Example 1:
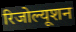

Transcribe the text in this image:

रिजोल्‍यूशन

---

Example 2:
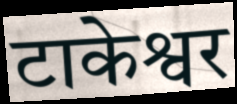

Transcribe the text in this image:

टाकेश्वर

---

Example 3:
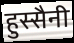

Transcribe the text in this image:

हुस्सैनी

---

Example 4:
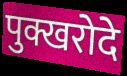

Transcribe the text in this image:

पुक्खरोदे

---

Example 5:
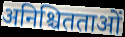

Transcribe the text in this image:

अनिश्चितताओं